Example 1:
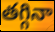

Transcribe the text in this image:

తగ్గినా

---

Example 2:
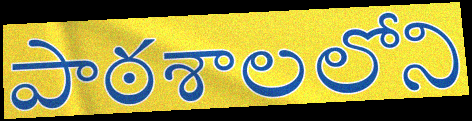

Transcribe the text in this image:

పాఠశాలలోని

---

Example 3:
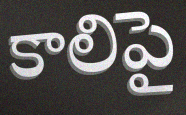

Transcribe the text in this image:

కాలిపై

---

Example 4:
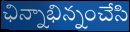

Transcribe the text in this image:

ఛిన్నాభిన్నంచేసి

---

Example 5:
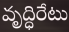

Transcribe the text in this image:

వృద్ధిరేటు